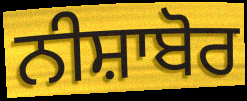
ਨੀਸ਼ਾਬੋਰ